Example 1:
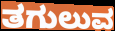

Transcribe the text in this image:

ತಗುಲುವ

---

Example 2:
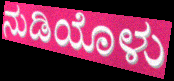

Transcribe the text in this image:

ನುಡಿಯೊಳು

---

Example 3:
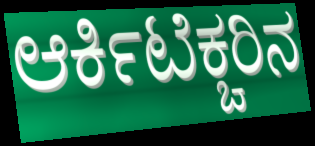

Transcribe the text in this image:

ಆರ್ಕಿಟೆಕ್ಚರಿನ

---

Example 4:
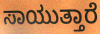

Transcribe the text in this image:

ಸಾಯುತ್ತಾರೆ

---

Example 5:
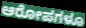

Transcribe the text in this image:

ಆರೋಪಗಳೂ